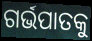
ଗର୍ଭପାତକୁ